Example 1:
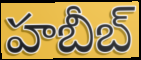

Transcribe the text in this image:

హబీబ్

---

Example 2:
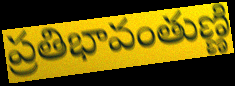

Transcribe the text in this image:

ప్రతిభావంతుణ్ణి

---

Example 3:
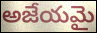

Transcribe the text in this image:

అజేయమై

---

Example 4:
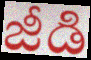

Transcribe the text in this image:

జీడి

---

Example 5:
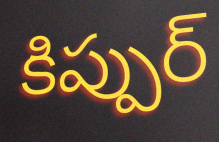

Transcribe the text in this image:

కిప్పుర్